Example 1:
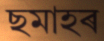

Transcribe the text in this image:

ছমাহৰ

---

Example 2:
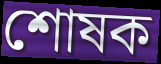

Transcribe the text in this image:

শোষক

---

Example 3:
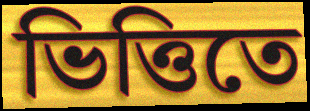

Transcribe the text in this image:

ভিত্তিতে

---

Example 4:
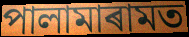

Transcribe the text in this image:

পালামাৰামত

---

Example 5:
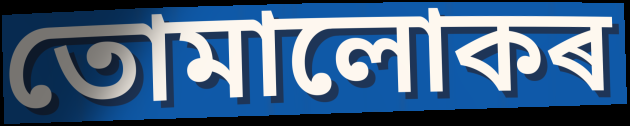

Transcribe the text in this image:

তোমালোকৰ